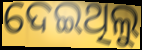
ଦେଇଥିଲୁ